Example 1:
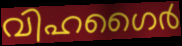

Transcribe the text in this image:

വിഹഗൈർ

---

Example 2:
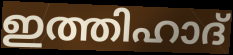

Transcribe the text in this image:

ഇത്തിഹാദ്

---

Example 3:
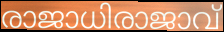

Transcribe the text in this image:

രാജാധിരാജാവ്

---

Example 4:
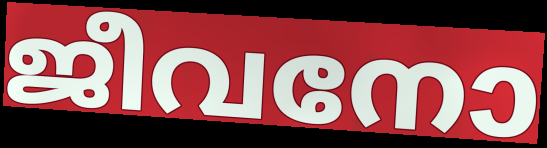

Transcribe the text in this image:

ജീവനോ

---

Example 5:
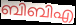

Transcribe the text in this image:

ബിബിഎ